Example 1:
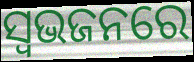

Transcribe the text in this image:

ସ୍ଵଭଜନରେ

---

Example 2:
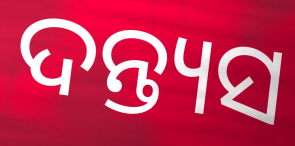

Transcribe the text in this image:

ଦନ୍ତ୍ୟସ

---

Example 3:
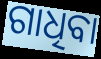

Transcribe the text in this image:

ଗାଧିବା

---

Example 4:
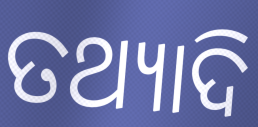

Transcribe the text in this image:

ତଥ୍ୟାଦି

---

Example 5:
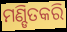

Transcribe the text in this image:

ମଣ୍ଡିତକରି